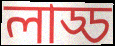
লাড্ড